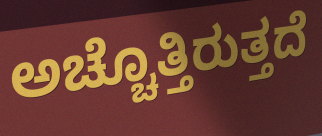
ಅಚ್ಚೊತ್ತಿರುತ್ತದೆ